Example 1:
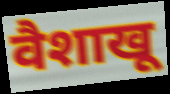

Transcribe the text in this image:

वैशाखू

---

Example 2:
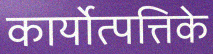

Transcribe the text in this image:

कार्योत्पत्तिके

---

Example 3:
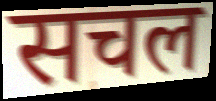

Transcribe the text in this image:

सचल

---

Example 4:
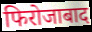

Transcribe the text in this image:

फिरोजाबाद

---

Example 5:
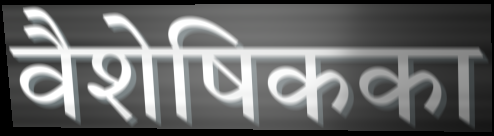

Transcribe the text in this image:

वैशेषिकका